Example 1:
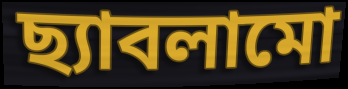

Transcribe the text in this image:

ছ্যাবলামো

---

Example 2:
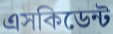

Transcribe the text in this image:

এসকিডেন্ট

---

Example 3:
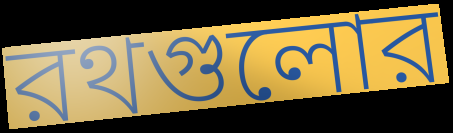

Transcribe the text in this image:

রথগুলোর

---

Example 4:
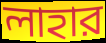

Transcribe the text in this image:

লাহার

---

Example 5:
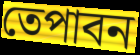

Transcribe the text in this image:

তেপাবন